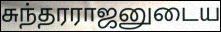
சுந்தரராஜனுடைய